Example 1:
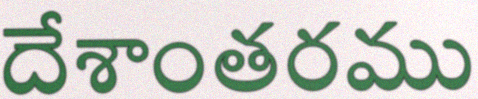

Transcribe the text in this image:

దేశాంతరము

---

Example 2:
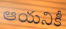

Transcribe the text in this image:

ఆయనికీ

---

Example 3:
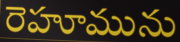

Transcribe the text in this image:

రెహూమును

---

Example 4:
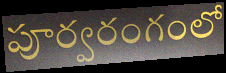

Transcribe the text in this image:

పూర్వరంగంలో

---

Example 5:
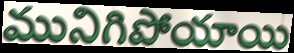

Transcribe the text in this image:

మునిగిపోయాయి